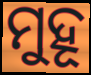
ମୁହୂ